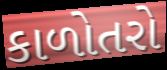
કાળોતરો